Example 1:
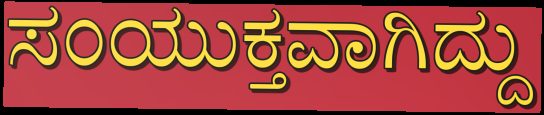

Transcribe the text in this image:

ಸಂಯುಕ್ತವಾಗಿದ್ದು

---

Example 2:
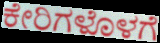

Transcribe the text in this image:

ಕೇರಿಗಳೊಳಗೆ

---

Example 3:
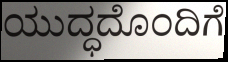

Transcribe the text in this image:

ಯುದ್ಧದೊಂದಿಗೆ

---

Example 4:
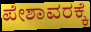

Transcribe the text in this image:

ಪೇಶಾವರಕ್ಕೆ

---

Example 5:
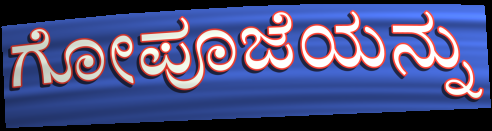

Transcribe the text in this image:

ಗೋಪೂಜೆಯನ್ನು